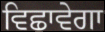
ਵਿਛਾਵੇਗਾ